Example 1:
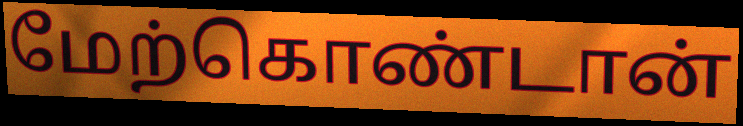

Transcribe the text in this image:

மேற்கொண்டான்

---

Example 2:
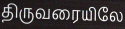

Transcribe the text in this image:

திருவரையிலே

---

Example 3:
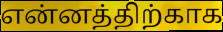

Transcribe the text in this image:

என்னத்திற்காக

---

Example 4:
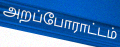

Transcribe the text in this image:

அறப்போராட்டம்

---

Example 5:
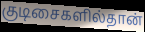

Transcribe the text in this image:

குடிசைகளில்தான்